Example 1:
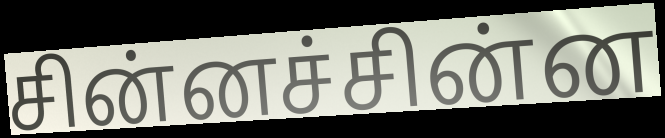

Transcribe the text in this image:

சின்னச்சின்ன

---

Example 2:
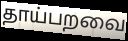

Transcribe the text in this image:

தாய்பறவை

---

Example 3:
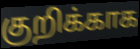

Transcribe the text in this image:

குறிக்காக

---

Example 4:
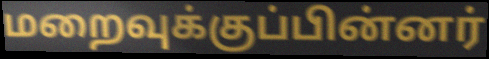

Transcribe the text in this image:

மறைவுக்குப்பின்னர்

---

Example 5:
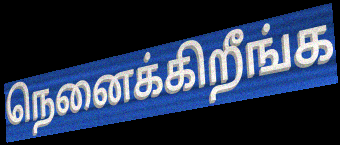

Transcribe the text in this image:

நெனைக்கிறீங்க